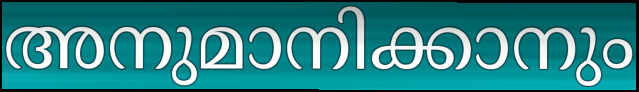
അനുമാനിക്കാനും